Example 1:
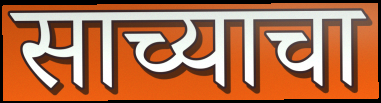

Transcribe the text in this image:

साच्याचा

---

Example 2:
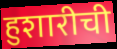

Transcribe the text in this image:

हुशारीची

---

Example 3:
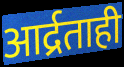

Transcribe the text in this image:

आर्द्रताही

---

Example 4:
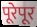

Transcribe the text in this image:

पूरेपूर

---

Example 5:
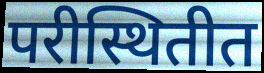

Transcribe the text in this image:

परीस्थितीत